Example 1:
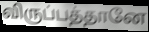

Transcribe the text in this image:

விருப்பத்தானே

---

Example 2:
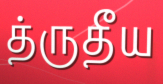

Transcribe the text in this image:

த்ருதீய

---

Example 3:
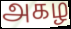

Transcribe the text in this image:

அகழ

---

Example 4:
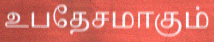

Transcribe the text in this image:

உபதேசமாகும்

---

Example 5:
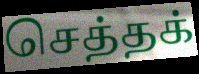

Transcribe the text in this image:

செத்தக்